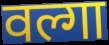
वल्गा